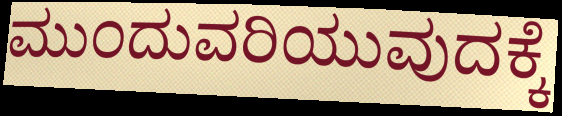
ಮುಂದುವರಿಯುವುದಕ್ಕೆ